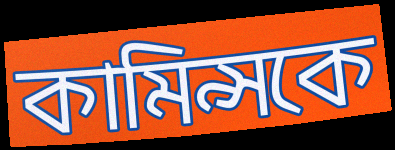
কামিন্সকে